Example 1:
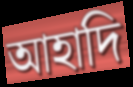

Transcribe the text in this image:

আহাদি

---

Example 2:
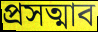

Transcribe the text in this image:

প্রসত্মাব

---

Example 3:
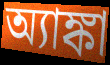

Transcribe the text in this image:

অ্যাঙ্কা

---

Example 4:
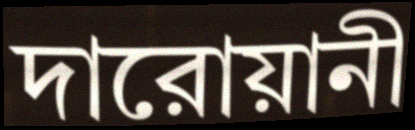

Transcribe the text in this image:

দারোয়ানী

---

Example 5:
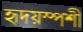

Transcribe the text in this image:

হৃদয়স্পশী